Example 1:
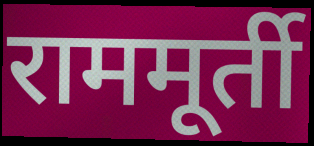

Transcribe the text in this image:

राममूर्ती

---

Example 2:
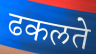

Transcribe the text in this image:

ढकलते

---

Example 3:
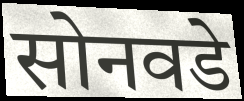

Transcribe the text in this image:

सोनवडे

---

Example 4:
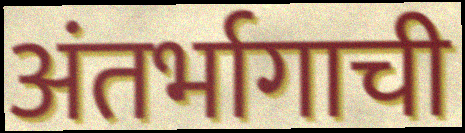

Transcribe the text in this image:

अंतर्भागाची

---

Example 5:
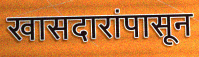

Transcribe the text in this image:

खासदारांपासून